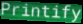
Printify